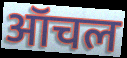
ऑचल